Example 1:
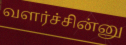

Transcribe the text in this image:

வளர்ச்சின்னு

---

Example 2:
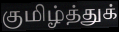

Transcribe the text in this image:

குமிழ்த்துக்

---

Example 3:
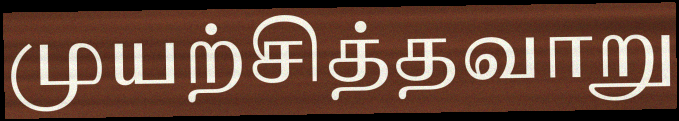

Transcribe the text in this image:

முயற்சித்தவாறு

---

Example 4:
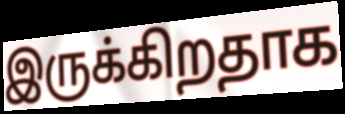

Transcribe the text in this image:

இருக்கிறதாக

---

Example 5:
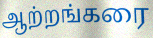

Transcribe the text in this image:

ஆற்றங்கரை